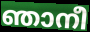
ഞാനീ